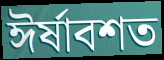
ঈর্ষাবশত